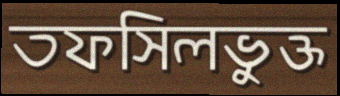
তফসিলভুক্ত